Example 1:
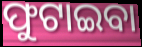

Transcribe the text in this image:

ଫୁଟାଇବା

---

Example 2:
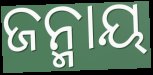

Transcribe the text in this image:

ଜନ୍ମାୟ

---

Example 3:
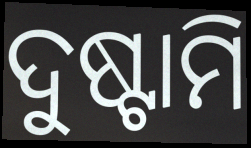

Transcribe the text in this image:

ଦୁଷ୍ଟାମି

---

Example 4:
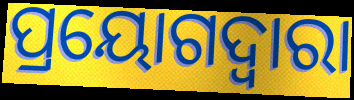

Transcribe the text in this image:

ପ୍ରୟୋଗଦ୍ଵାରା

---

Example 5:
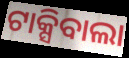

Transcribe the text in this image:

ଟାକ୍ସିବାଲା